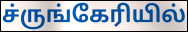
ச்ருங்கேரியில்